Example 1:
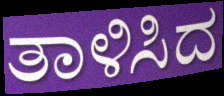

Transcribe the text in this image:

ತಾಳಿಸಿದ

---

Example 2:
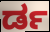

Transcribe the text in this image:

ರ್ಡ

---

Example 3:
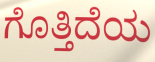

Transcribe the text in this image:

ಗೊತ್ತಿದೆಯ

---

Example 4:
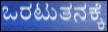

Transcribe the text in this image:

ಒರಟುತನಕ್ಕೆ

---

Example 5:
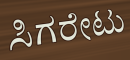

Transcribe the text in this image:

ಸಿಗರೇಟು